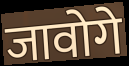
जावोगे